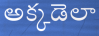
అక్కడెలా